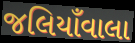
જલિયાઁવાલા